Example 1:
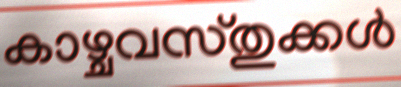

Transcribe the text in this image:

കാഴ്ചവസ്തുക്കൾ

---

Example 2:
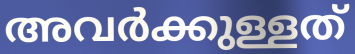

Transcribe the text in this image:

അവർക്കുള്ളത്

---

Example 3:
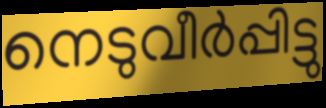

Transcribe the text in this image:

നെടുവീർപ്പിട്ടു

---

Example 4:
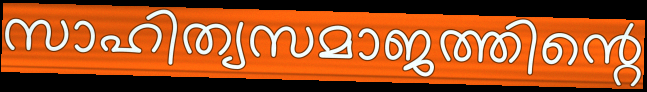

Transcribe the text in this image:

സാഹിത്യസമാജത്തിന്റെ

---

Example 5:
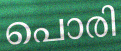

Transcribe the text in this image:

പൊരി